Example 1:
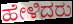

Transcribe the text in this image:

ಹೇಳಿದರು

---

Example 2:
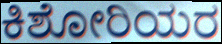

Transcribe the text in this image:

ಕಿಶೋರಿಯರ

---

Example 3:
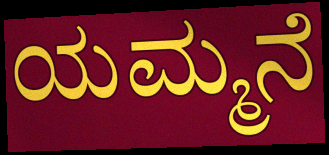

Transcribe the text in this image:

ಯಮ್ಮನೆ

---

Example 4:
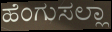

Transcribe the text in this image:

ಹೆಂಗುಸಲ್ಲಾ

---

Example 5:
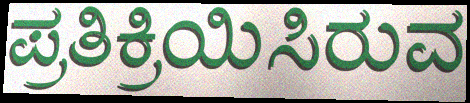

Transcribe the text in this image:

ಪ್ರತಿಕ್ರಿಯಿಸಿರುವ